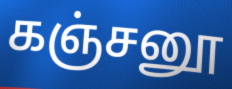
கஞ்சனூ